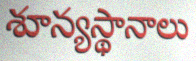
శూన్యస్థానాలు